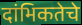
दांभिकतेचे